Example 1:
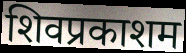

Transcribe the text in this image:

शिवप्रकाशम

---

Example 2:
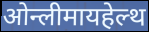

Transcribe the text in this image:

ओन्लीमायहेल्थ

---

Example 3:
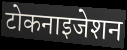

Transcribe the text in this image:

टोकनाइजेशन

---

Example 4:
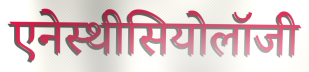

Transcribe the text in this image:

एनेस्थीसियोलॉजी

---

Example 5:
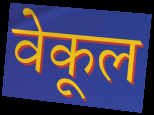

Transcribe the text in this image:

वेकूल